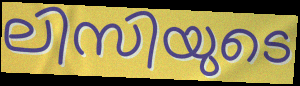
ലിസിയുടെ